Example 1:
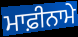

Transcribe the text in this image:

ਮਾਫ਼ੀਨਾਮੇ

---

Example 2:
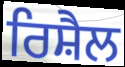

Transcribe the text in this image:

ਰਿਸ਼ੈਲ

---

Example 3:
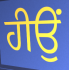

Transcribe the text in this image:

ਹੀਉਂ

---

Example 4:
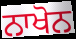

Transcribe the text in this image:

ਨਾਖੋਨ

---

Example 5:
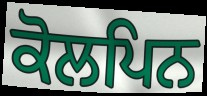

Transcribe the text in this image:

ਕੋਲਪਿਨ